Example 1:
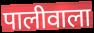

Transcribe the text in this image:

पालीवाला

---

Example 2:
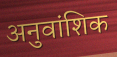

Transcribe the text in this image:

अनुवांशिक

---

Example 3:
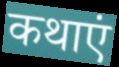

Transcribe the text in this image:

कथाएं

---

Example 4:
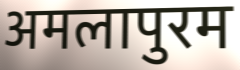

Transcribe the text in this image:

अमलापुरम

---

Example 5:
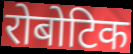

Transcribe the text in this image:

रोबोटिक